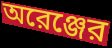
অরেঞ্জের